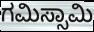
ಗಮಿಸ್ಸಾಮಿ